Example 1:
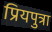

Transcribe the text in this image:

प्रियपुत्रा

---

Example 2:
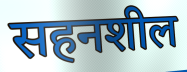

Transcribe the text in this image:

सहनशील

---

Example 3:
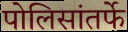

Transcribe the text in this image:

पोलिसांतर्फे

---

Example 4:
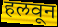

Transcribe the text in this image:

हलवून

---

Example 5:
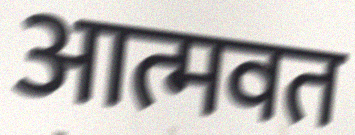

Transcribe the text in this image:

आत्मवत